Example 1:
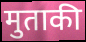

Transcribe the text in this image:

मुताकी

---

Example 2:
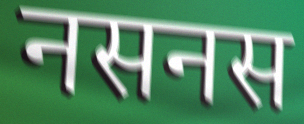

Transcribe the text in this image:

नसनस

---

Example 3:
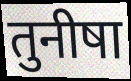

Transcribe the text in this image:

तुनीषा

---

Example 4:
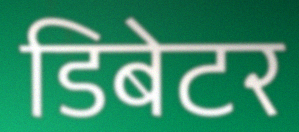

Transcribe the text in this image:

डिबेटर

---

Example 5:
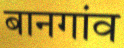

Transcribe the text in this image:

बानगांव